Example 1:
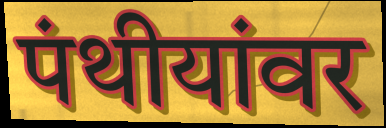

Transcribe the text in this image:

पंथीयांवर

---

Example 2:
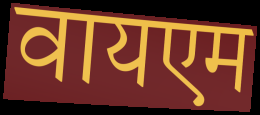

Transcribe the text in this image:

वायएम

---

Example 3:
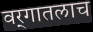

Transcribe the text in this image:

वर्गातलाच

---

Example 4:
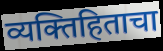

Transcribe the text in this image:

व्यक्तिहिताचा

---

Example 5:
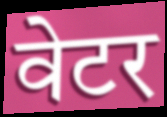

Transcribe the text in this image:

वेटर